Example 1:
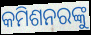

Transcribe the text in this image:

କମିଶନରଙ୍କୁ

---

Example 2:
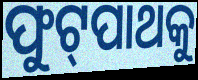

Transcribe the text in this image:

ଫୁଟ୍‌ପାଥକୁ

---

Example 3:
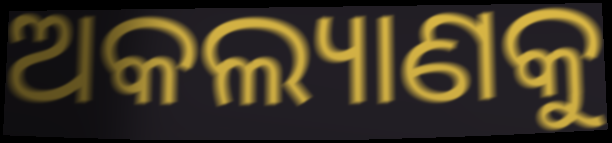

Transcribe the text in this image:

ଅକଲ୍ୟାଣକୁ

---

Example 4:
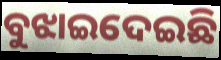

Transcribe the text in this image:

ବୁଝାଇଦେଇଛି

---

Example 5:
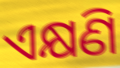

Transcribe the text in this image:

ଏକ୍ଷଣି